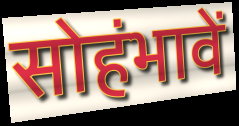
सोहंभावें